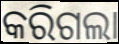
କରିଗଲା